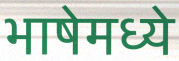
भाषेमध्ये